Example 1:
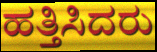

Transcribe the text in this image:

ಹತ್ತಿಸಿದರು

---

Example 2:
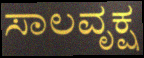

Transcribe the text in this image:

ಸಾಲವೃಕ್ಷ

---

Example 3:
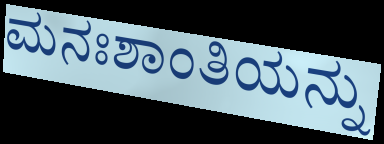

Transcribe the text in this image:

ಮನಃಶಾಂತಿಯನ್ನು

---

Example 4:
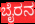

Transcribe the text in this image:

ಬೈರನ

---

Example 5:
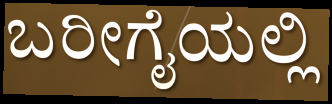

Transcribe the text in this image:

ಬರೀಗೈಯಲ್ಲಿ